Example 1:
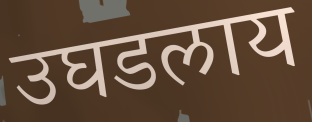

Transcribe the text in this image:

उघडलाय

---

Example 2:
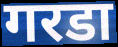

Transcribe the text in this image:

गरडा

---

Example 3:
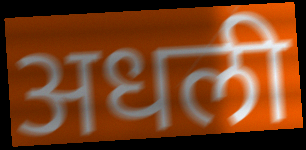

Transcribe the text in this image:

अधली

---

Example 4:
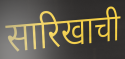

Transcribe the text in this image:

सारिखाची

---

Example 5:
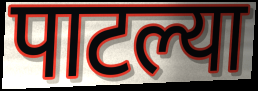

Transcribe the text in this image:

पाटल्या